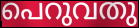
പെറുവതു